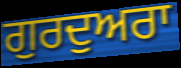
ਗੁਰਦੁਅਰਾ